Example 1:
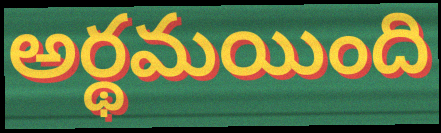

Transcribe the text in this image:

అర్థమయింది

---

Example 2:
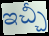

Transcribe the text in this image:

ఇచ్చీ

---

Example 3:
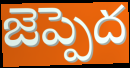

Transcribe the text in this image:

జెప్పెద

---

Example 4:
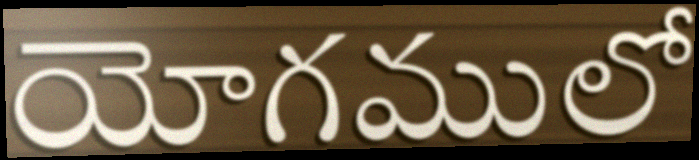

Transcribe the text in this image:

యోగములో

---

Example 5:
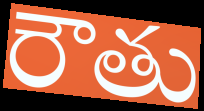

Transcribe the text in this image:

రౌతు